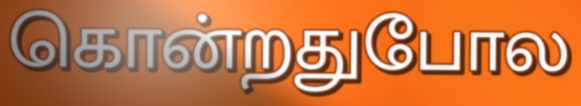
கொன்றதுபோல